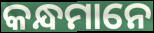
କନ୍ଧମାନେ